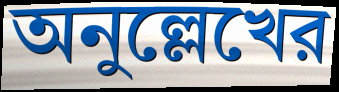
অনুল্লেখের